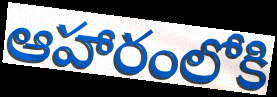
ఆహారంలోకి